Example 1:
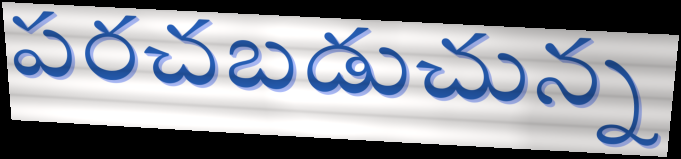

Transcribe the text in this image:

పరచబడుచున్న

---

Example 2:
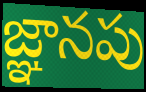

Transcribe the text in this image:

జ్ఞానపు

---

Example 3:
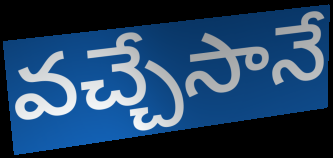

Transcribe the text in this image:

వచ్చేసానే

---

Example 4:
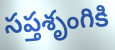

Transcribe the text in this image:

సప్తశృంగికి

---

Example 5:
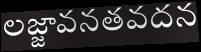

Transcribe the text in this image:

లజ్జావనతవదన